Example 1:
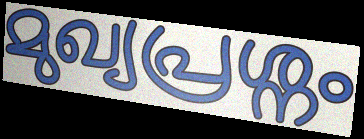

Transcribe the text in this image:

മുഖ്യപ്രശ്നം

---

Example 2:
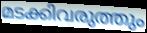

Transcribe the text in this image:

മടക്കിവരുത്തും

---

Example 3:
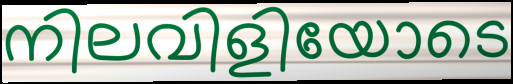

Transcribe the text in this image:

നിലവിളിയോടെ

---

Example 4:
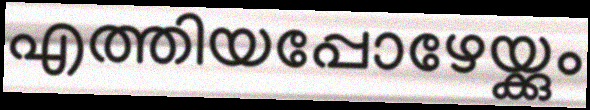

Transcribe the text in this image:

എത്തിയപ്പോഴേയ്ക്കും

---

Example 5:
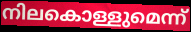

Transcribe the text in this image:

നിലകൊള്ളുമെന്ന്